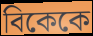
বিকেকে